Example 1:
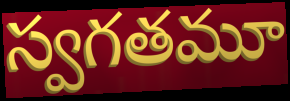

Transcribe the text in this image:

స్వగతమూ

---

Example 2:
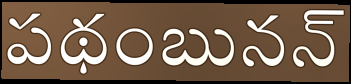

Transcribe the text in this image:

పథంబునన్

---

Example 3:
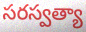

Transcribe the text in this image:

సరస్వత్యా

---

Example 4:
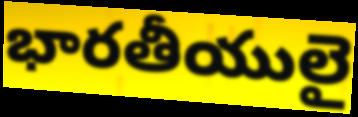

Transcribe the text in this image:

భారతీయులై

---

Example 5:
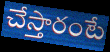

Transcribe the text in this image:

చేస్తారంటే